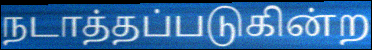
நடாத்தப்படுகின்ற